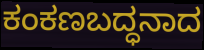
ಕಂಕಣಬದ್ಧನಾದ